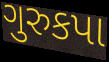
ગુરુકપા